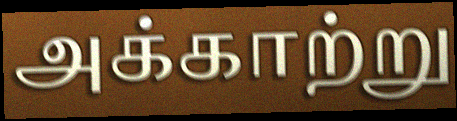
அக்காற்று